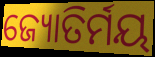
ଜ୍ୟୋତିର୍ମୟ